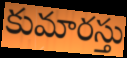
కుమారస్తు